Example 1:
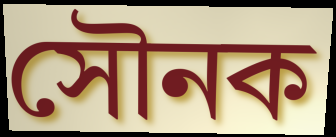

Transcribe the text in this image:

সৌনক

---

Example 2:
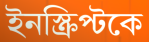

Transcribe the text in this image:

ইনস্ক্রিপ্টকে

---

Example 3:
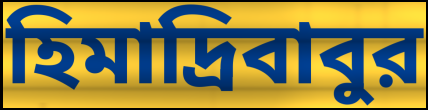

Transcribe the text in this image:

হিমাদ্রিবাবুর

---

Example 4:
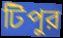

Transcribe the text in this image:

টিপুর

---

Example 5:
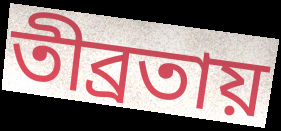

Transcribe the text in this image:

তীব্রতায়